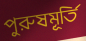
পুরুষমূর্তি